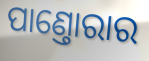
ପାଣ୍ତୋରାର